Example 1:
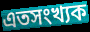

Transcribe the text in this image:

এতসংখ্যক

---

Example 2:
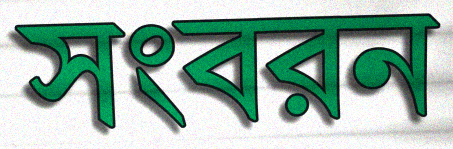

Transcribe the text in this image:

সংবরন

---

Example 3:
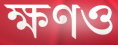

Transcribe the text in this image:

ক্ষণও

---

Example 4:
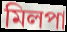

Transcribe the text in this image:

মিলপা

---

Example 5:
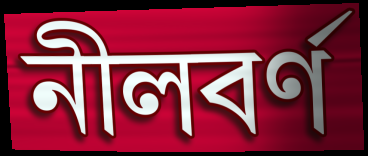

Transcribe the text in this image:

নীলবর্ণ